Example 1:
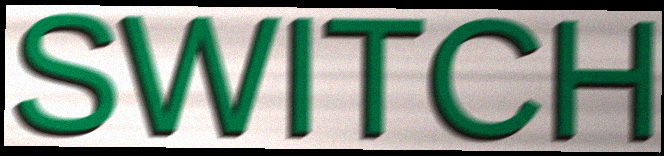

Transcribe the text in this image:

SWITCH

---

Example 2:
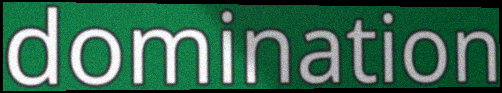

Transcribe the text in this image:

domination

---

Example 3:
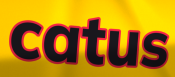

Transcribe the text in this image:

catus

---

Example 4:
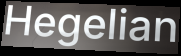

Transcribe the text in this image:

Hegelian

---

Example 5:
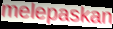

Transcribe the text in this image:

melepaskan